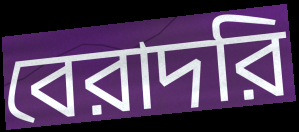
বেরাদরি